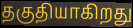
தகுதியாகிறது